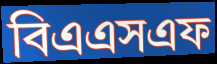
বিএএসএফ